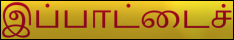
இப்பாட்டைச்